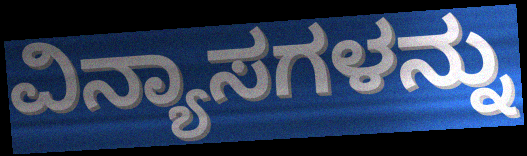
ವಿನ್ಯಾಸಗಳನ್ನು